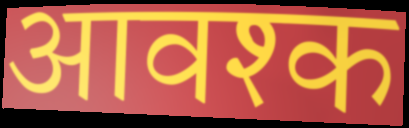
आवश्क